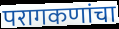
परागकणांचा